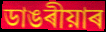
ডাঙৰীয়াৰ